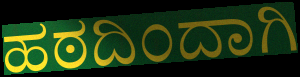
ಹಠದಿಂದಾಗಿ